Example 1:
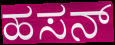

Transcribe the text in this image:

ಹಸನ್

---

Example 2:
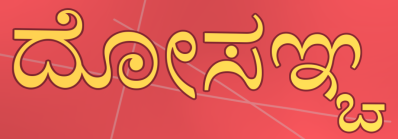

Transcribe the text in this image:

ದೋಸಞ್ಚ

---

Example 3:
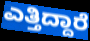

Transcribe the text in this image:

ಎತ್ತಿದ್ದಾರೆ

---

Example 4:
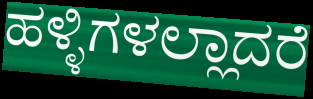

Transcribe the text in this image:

ಹಳ್ಳಿಗಳಲ್ಲಾದರೆ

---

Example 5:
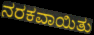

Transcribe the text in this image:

ನರಕವಾಯಿತು